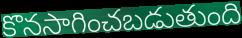
కొనసాగించబడుతుంది